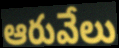
ఆరువేలు